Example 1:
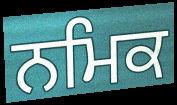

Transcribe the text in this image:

ਨਮਿਕ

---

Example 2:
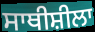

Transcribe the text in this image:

ਸਾਥੀਸ਼ੀਲਾ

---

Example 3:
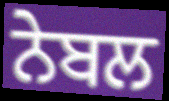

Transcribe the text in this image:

ਨੇਬਲ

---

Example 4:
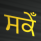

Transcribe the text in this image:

ਸਕੇਁ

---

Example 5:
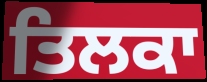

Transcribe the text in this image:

ਤਿਲਕਾ